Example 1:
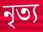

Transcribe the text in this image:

নৃত্য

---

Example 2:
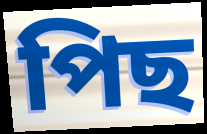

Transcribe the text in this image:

পিছ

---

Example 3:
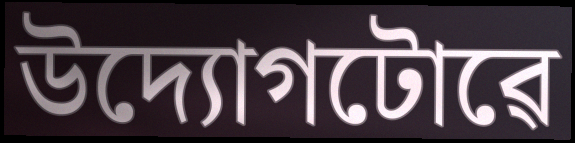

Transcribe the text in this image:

উদ্যোগটোৱে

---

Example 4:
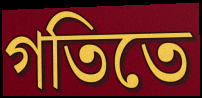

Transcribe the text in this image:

গতিতে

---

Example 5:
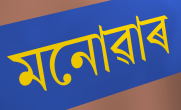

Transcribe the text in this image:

মনোৱাৰ